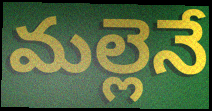
మల్లెనే